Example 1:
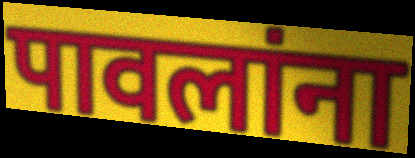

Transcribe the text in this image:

पावलांना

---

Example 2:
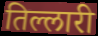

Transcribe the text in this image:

तिल्लारी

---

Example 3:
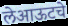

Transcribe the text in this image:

लेआऊटचे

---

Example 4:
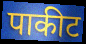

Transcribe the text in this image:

पाकीट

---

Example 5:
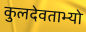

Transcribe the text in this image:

कुलदेवताभ्यो